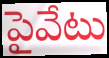
పైవేటు